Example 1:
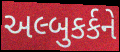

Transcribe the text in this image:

અલ્બુકર્કને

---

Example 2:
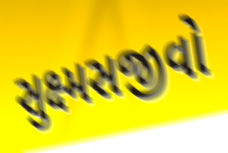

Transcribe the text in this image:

સુક્ષ્મસજીવો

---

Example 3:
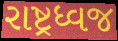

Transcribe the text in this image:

રાષ્ટ્રધ્વજ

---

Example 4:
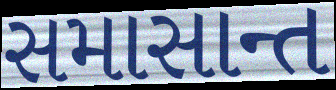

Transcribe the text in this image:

સમાસાન્ત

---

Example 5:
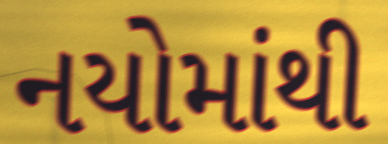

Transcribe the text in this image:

નયોમાંથી